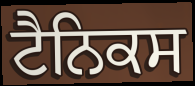
ਟੈਨਿਕਸ